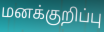
மனக்குறிப்பு